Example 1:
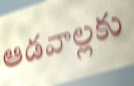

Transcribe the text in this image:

ఆడవాల్లకు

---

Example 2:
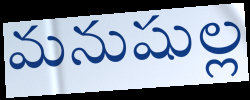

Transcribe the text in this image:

మనుషుల్ల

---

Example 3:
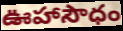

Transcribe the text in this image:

ఊహాసౌధం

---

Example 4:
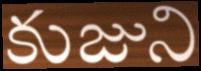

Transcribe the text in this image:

కుజుని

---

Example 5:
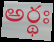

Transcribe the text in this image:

అర్థః